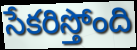
సేకరిస్తోంది